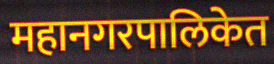
महानगरपालिकेत